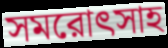
সমরোৎসাহ